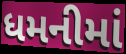
ધમનીમાં